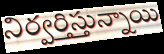
నిర్వర్తిస్తున్నాయి